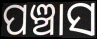
ପଞ୍ଚାସ